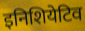
इनिशियेटिव